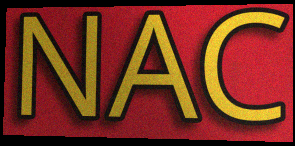
NAC